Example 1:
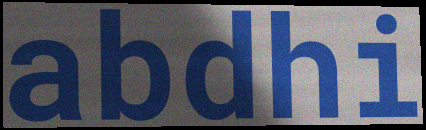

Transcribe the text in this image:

abdhi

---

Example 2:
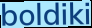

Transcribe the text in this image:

boldiki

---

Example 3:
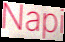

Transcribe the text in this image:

Napi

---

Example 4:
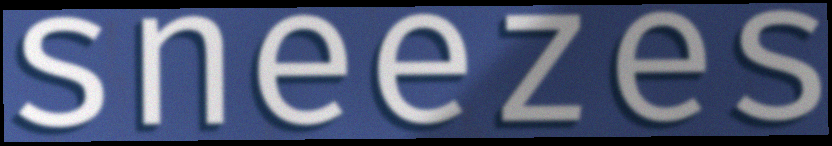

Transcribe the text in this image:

sneezes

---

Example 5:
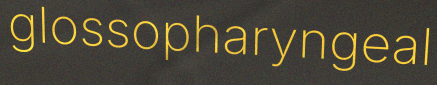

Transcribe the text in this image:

glossopharyngeal